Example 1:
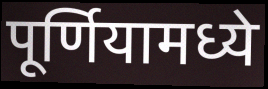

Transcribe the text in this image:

पूर्णियामध्ये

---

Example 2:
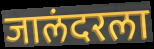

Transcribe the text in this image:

जालंदरला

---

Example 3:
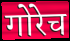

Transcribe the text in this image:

गोरेच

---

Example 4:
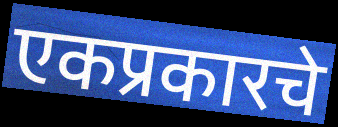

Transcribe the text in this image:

एकप्रकारचे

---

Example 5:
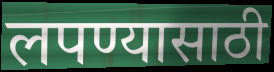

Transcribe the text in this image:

लपण्यासाठी